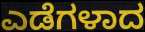
ಎಡೆಗಳಾದ